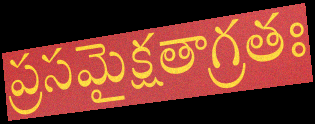
ప్రసమైక్షతాగ్రతః